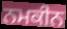
ਨਮਕੀਨ